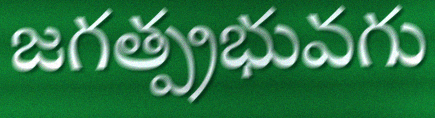
జగత్ప్రభువగు